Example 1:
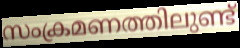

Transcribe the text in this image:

സംക്രമണത്തിലുണ്ട്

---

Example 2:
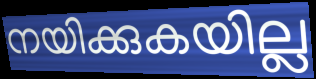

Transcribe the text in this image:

നയിക്കുകയില്ല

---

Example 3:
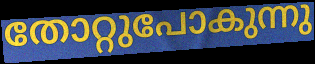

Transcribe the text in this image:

തോറ്റുപോകുന്നു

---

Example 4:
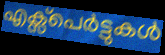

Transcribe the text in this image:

എക്സ്പെർട്ടുകൾ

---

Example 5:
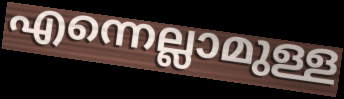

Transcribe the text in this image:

എന്നെല്ലാമുള്ള